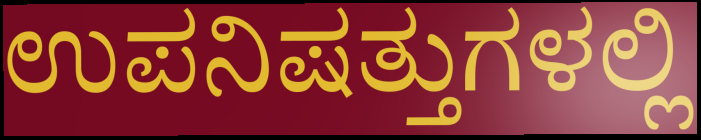
ಉಪನಿಷತ್ತುಗಳಲ್ಲಿ